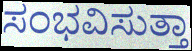
ಸಂಭವಿಸುತ್ತಾ